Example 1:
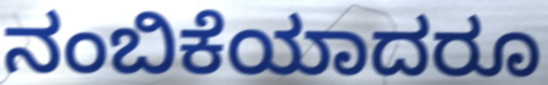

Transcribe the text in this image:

ನಂಬಿಕೆಯಾದರೂ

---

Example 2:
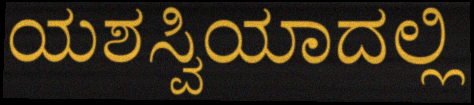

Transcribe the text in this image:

ಯಶಸ್ವಿಯಾದಲ್ಲಿ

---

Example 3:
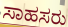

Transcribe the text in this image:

ಸಾಹಸರು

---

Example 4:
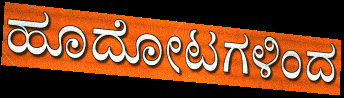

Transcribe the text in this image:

ಹೂದೋಟಗಳಿಂದ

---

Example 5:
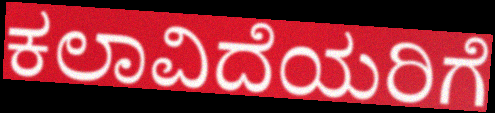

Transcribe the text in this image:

ಕಲಾವಿದೆಯರಿಗೆ